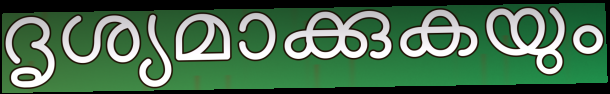
ദൃശ്യമാക്കുകയും